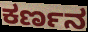
ಕರ್ಣನ